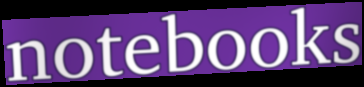
notebooks